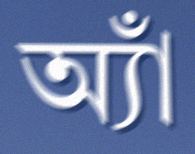
অ্যাঁ